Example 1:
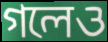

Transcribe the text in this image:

গলেও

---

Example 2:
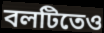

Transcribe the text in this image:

বলটিতেও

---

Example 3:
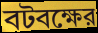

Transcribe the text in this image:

বটবক্ষের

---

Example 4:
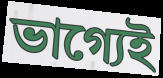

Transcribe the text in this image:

ভাগ্যেই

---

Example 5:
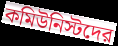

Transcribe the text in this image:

কমিউনিস্টদের